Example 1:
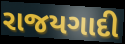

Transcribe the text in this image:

રાજયગાદી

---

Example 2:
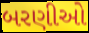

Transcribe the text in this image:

બરણીઓ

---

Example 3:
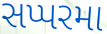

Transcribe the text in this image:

સપ્પરમા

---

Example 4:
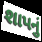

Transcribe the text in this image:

શાપનું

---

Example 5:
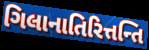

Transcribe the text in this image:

ગિલાનાતિરિત્તન્તિ